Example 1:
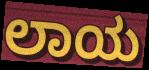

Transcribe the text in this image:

ಲಾಯ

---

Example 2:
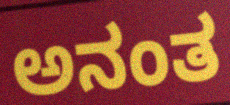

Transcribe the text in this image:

ಅನಂತ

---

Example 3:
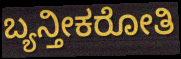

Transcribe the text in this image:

ಬ್ಯನ್ತೀಕರೋತಿ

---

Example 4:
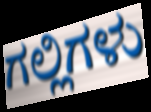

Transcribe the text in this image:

ಗಲ್ಲಿಗಳು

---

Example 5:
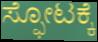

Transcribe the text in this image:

ಸ್ಫೋಟಕ್ಕೆ